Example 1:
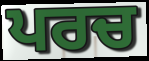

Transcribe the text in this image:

ਪਰਚ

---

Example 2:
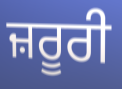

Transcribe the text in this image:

ਜ਼ਰੂਰੀ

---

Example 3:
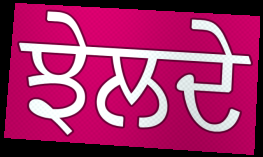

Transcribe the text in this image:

ਝੇਲਦੇ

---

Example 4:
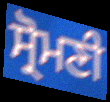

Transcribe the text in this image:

ਸ੍ਰੋਮਣੀ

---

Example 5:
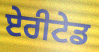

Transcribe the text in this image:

ਏਰੀਟੇਡ